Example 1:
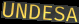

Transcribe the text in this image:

UNDESA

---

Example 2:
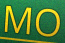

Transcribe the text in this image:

MO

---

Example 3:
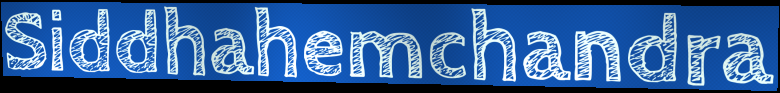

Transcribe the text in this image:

Siddhahemchandra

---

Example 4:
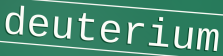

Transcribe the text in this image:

deuterium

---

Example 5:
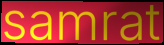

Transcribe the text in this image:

samrat